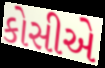
કોસીએ